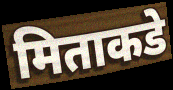
मिताकडे